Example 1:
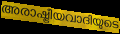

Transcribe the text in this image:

അരാഷ്ട്രീയവാദിയുടെ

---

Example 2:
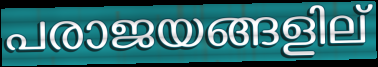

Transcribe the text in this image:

പരാജയങ്ങളില്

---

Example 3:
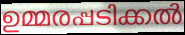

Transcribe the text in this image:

ഉമ്മരപ്പടിക്കൽ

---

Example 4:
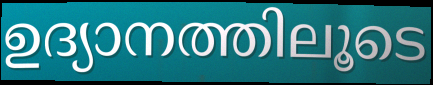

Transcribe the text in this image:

ഉദ്യാനത്തിലൂടെ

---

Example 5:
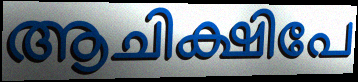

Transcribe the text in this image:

ആചിക്ഷിപേ